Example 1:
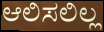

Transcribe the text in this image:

ಆಲಿಸಲಿಲ್ಲ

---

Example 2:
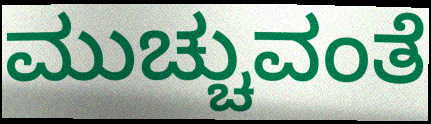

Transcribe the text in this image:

ಮುಚ್ಚುವಂತೆ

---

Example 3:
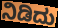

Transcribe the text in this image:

ನಿಡಿದು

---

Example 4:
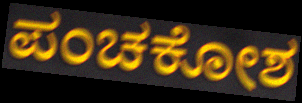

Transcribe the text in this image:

ಪಂಚಕೋಶ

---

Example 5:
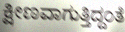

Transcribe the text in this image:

ಕ್ಷೀಣವಾಗುತ್ತಿದ್ದಂತೆ